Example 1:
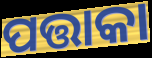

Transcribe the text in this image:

ପତ୍ତାକା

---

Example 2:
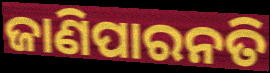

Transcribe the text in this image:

ଜାଣିପାରନତି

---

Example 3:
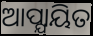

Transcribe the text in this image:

ଆପ୍ଯାୟିତ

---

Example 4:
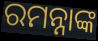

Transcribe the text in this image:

ରମନ୍ନାଙ୍କ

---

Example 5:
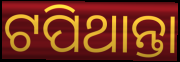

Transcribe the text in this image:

ଟପିଥାନ୍ତା